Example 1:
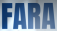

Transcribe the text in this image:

FARA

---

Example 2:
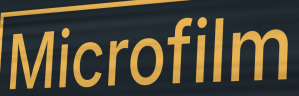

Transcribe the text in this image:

Microfilm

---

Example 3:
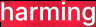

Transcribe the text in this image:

harming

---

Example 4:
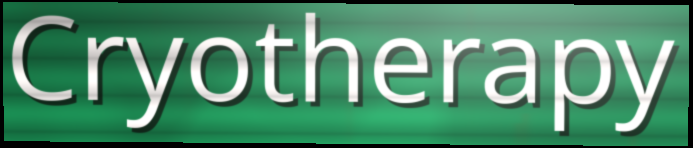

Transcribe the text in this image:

Cryotherapy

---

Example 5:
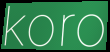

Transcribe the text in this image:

koro